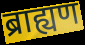
ब्राह्यण